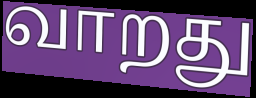
வாறது